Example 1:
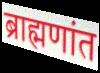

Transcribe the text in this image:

ब्राह्मणांत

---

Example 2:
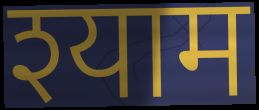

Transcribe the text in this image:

श्याम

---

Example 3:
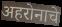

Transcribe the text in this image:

अहरोनाचे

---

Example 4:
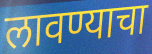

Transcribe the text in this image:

लावण्याचा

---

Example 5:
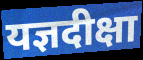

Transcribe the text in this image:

यज्ञदीक्षा